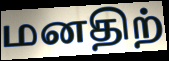
மனதிற்